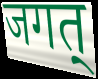
जगत्